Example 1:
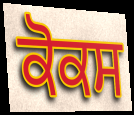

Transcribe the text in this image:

ਕੋਕਸ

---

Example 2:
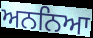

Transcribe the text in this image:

ਅਨਨਿਆ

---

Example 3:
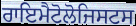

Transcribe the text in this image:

ਰਾਇਮੈਟੋਲੋਜਿਸਟਸ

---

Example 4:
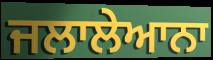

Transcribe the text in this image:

ਜਲਾਲੇਆਨਾ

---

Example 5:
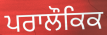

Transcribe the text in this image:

ਪਰਾਲੌਕਿਕ